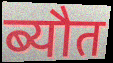
ब्यौत